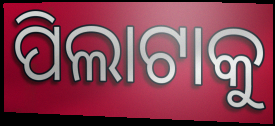
ପିଲାଟାକୁ